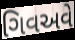
ગિવઅવે